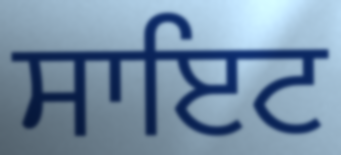
ਸਾਇਟ